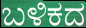
ಬಳಿಕದ